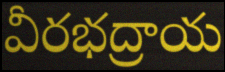
వీరభద్రాయ